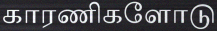
காரணிகளோடு